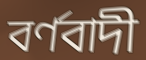
বৰ্ণবাদী